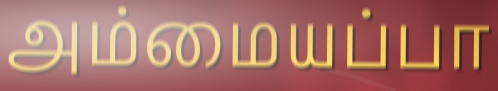
அம்மையப்பா